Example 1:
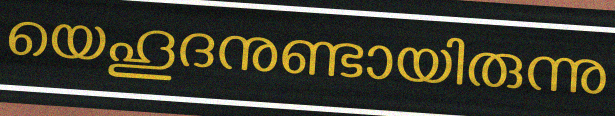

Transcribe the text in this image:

യെഹൂദനുണ്ടായിരുന്നു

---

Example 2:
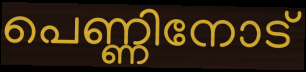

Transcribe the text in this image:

പെണ്ണിനോട്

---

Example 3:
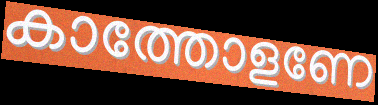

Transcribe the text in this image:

കാത്തോളണേ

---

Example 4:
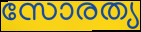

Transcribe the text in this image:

സോരത്യ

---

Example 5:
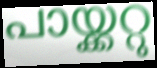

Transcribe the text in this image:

പായ്ക്കറ്റു